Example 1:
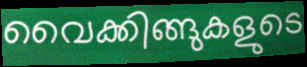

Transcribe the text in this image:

വൈക്കിങ്ങുകളുടെ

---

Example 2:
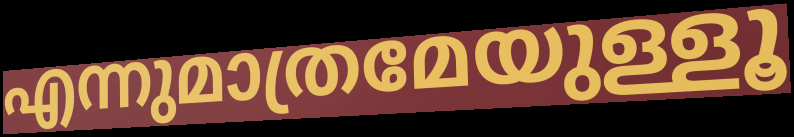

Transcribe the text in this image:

എന്നുമാത്രമേയുള്ളൂ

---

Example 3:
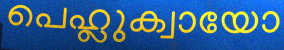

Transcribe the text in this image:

പെഹ്ലുക്വായോ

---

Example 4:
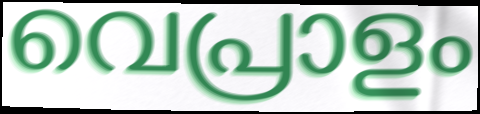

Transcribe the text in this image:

വെപ്രാളം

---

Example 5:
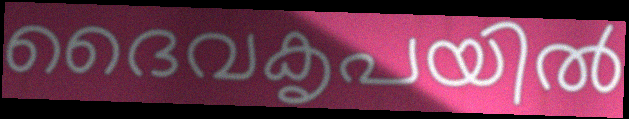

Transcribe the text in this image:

ദൈവകൃപയിൽ